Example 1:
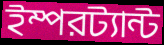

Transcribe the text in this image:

ইম্পরট্যান্ট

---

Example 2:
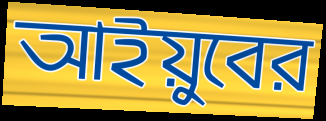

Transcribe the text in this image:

আইয়ুবের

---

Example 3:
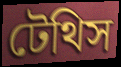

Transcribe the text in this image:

টেথিস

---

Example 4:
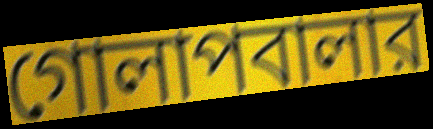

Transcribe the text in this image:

গোলাপবালার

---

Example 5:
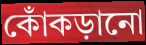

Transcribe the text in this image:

কোঁকড়ানো